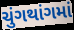
ચુંગથાંગમાં